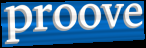
proove